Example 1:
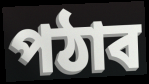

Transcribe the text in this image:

পঠাব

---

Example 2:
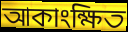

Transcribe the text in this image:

আকাংক্ষিত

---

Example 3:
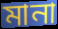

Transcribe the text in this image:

মানা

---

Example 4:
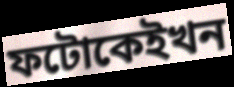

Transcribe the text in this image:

ফটোকেইখন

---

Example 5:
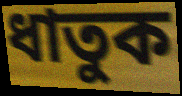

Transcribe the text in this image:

ধাতুক